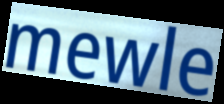
mewle